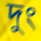
দুং